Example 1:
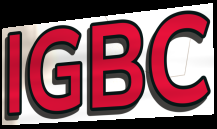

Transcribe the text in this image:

IGBC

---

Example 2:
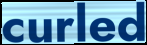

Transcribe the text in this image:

curled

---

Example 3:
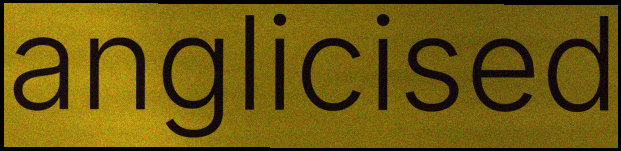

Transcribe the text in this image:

anglicised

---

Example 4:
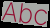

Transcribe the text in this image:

Abc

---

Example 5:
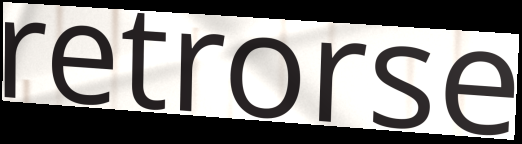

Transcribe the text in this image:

retrorse